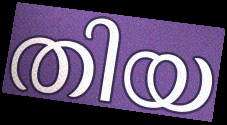
തിയ